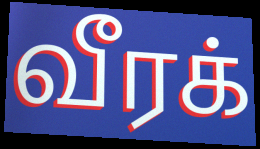
வீரக்